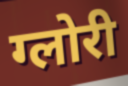
ग्लोरी